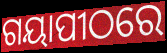
ଗୟାପୀଠରେ